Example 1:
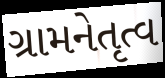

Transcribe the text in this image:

ગ્રામનેતૃત્વ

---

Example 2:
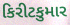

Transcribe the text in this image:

કિરીટકુમાર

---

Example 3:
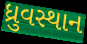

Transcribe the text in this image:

ધ્રુવસ્થાન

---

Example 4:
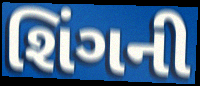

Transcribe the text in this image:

શિંગની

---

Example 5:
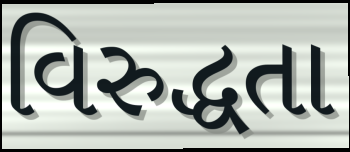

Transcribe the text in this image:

વિરુદ્ધતા